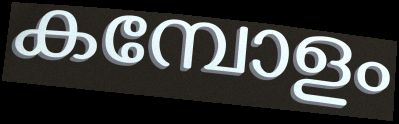
കമ്പോളം